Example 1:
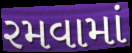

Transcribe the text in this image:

રમવામાં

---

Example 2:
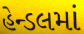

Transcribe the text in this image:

હેન્ડલમાં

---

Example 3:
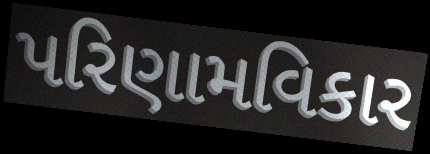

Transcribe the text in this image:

પરિણામવિકાર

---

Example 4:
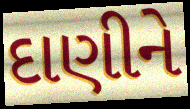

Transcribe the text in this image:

દાણીને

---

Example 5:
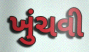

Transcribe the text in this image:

ખુંચવી